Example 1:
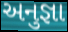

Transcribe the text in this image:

અનુજ્ઞા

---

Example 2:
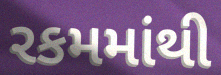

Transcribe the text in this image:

રકમમાંથી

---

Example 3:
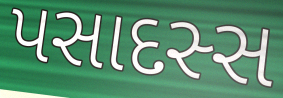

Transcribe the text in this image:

પસાદસ્સ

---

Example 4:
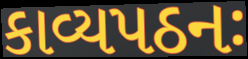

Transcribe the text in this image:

કાવ્યપઠનઃ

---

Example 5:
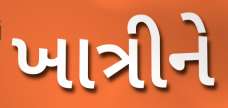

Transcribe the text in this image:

ખાત્રીને